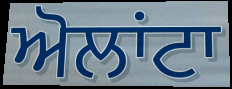
ਅੋਲਾਂਟਾ